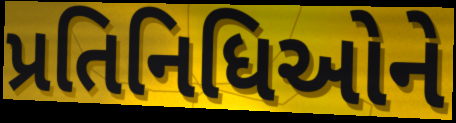
પ્રતિનિધિઓને